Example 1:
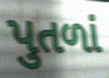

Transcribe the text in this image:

પુતળાં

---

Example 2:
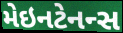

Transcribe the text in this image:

મેઇનટેનન્સ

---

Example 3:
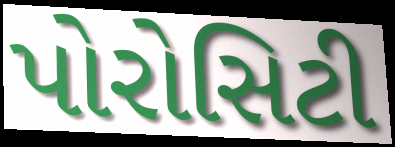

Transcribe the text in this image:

પોરોસિટી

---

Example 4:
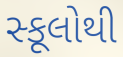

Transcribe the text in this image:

સ્કૂલોથી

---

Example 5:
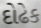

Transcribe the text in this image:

દોઢેક